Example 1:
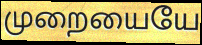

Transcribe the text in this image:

முறையையே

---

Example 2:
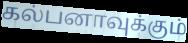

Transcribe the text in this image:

கல்பனாவுக்கும்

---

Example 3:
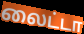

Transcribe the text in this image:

லைட்டா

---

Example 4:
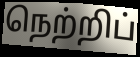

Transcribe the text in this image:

நெற்றிப்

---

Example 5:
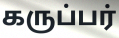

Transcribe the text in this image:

கருப்பர்